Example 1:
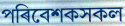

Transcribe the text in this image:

পৰিবেশকসকল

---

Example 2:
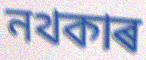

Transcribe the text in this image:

নথকাৰ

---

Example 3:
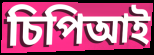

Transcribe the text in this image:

চিপিআই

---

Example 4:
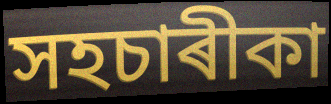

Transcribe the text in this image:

সহচাৰীকা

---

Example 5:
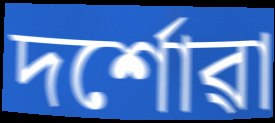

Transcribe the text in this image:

দৰ্শোৱা